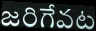
జరిగేవట